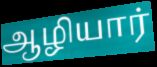
ஆழியார்